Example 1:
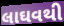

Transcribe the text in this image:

લાઘવથી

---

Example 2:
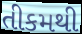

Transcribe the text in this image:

તીકમથી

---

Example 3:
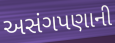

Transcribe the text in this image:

અસંગપણાની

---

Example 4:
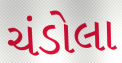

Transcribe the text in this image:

ચંડોલા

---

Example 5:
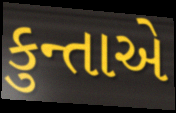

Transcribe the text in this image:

કુન્તાએ